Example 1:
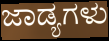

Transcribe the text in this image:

ಜಾಡ್ಯಗಳು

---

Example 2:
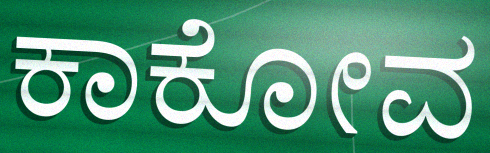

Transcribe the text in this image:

ಕಾಕೋವ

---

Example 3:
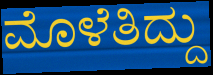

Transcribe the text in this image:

ಮೊಳೆತಿದ್ದು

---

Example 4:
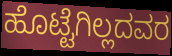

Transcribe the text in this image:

ಹೊಟ್ಟೆಗಿಲ್ಲದವರ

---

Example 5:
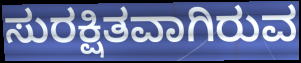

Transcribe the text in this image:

ಸುರಕ್ಷಿತವಾಗಿರುವ